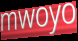
mwoyo